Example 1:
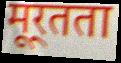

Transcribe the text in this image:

मूर्तता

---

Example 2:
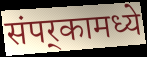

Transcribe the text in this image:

संपर्कामध्ये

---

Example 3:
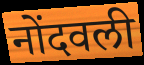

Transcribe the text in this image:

नोंदवली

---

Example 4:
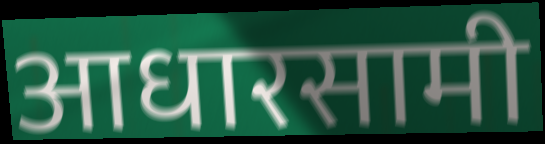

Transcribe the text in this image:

आधारसामी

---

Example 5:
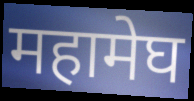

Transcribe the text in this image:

महामेघ